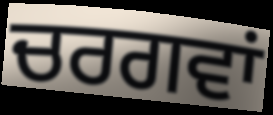
ਚਰਗਵਾਂ